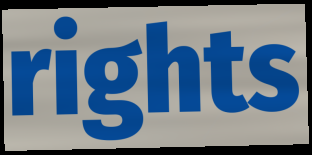
rights